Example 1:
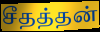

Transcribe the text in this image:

சீதத்தன்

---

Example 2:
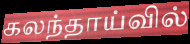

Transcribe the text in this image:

கலந்தாய்வில்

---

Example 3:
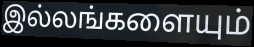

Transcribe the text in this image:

இல்லங்களையும்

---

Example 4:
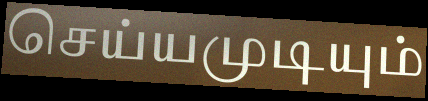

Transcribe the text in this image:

செய்யமுடியும்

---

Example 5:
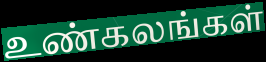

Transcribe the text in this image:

உண்கலங்கள்